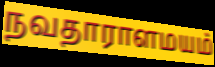
நவதாராளமயம்